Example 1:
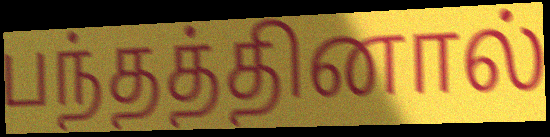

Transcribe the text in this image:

பந்தத்தினால்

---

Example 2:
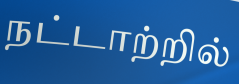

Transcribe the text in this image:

நட்டாற்றில்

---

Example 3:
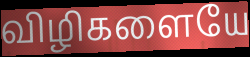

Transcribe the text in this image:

விழிகளையே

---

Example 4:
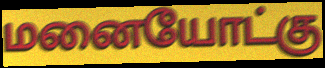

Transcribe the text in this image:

மனையோட்கு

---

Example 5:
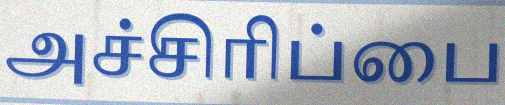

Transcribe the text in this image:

அச்சிரிப்பை